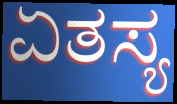
ಏತಸ್ಯ